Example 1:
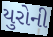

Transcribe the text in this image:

યુરોની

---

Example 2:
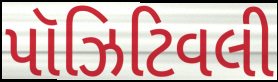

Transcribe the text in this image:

પૉઝિટિવલી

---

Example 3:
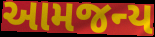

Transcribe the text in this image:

આમજન્ય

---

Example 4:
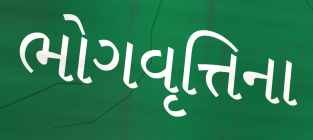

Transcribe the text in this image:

ભોગવૃત્તિના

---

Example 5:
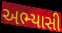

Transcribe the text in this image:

અભ્યાસી